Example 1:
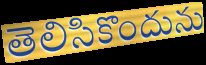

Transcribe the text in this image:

తెలిసికొందును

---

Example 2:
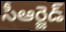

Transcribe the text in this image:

సీఆర్జెడ్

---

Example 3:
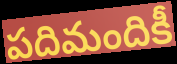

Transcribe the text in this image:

పదిమందికీ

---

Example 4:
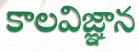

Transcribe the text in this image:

కాలవిజ్ఞాన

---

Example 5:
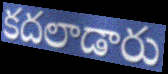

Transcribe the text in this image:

కదలాడారు